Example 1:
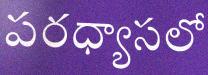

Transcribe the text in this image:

పరధ్యాసలో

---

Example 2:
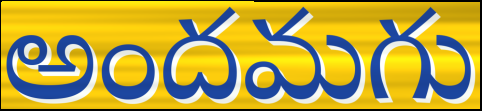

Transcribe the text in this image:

అందమగు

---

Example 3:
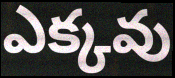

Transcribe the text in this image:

ఎక్కవు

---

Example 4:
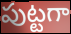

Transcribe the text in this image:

పుట్టగా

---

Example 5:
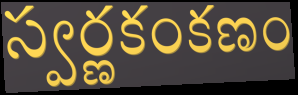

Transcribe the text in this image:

స్వర్ణకంకణం